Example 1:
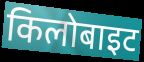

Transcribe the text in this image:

किलोबाइट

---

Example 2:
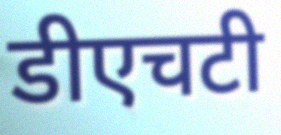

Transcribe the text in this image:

डीएचटी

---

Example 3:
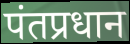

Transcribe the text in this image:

पंतप्रधान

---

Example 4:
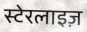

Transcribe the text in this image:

स्टेरलाइज़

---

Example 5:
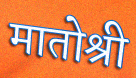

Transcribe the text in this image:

मातोश्री